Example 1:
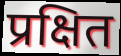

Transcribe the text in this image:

प्रक्षित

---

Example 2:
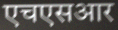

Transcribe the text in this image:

एचएसआर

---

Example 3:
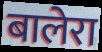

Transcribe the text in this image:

बालेरा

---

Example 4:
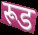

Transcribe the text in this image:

रूड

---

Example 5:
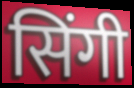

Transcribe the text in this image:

सिंगी